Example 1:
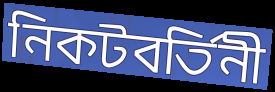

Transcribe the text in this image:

নিকটবর্তিনী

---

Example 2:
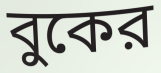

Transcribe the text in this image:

বুকের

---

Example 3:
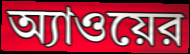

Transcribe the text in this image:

অ্যাওয়ের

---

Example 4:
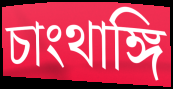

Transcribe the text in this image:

চাংথাঙ্গি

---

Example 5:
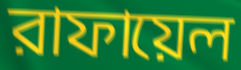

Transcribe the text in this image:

রাফায়েল